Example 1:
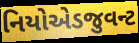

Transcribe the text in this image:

નિયોએડજુવન્ટ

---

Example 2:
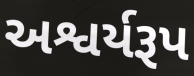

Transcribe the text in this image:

અશ્વર્યરૂપ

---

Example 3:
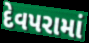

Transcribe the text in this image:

દેવપરામાં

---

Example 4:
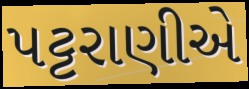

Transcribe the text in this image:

પટ્ટરાણીએ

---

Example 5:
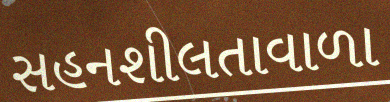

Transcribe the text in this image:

સહનશીલતાવાળા